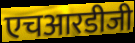
एचआरडीजी